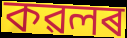
কৱলৰ